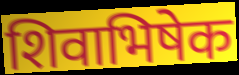
शिवाभिषेक